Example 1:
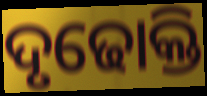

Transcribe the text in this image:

ଦୃଢୋକ୍ତି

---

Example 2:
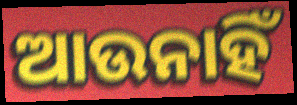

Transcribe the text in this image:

ଆଉନାହିଁ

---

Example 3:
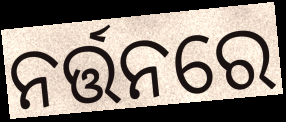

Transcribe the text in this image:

ନର୍ତ୍ତନରେ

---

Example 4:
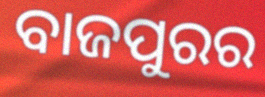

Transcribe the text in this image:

ବାଜପୁରର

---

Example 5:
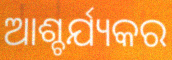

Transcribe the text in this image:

ଆଶ୍ଚର୍ଯ୍ୟକର